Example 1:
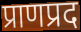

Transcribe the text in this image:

प्राणप्रद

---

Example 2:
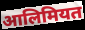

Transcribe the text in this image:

आलिमियत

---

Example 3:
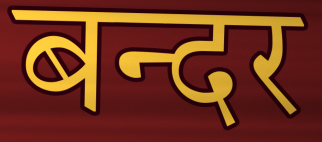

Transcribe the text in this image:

बन्दर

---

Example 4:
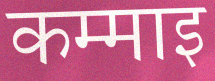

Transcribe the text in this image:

कम्माइ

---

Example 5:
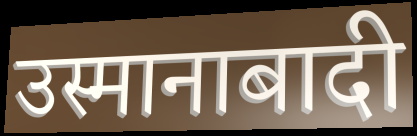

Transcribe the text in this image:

उस्मानाबादी